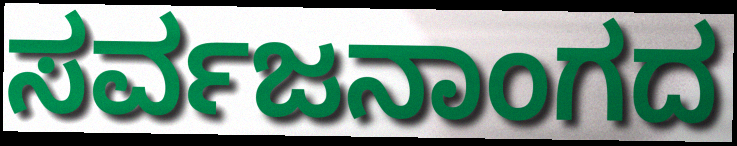
ಸರ್ವಜನಾಂಗದ